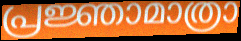
പ്രജ്ഞാമാത്രാ